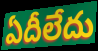
ఏదీలేదు